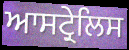
ਆਸਟ੍ਰੇਲਿਸ